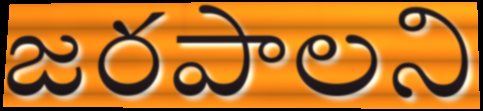
జరపాలని